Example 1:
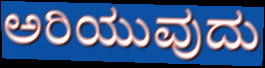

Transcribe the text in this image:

ಅರಿಯುವುದು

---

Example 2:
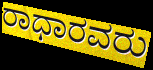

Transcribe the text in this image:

ರಾಧಾರವರು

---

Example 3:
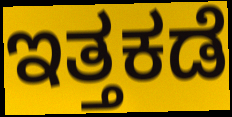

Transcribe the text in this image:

ಇತ್ತಕಡೆ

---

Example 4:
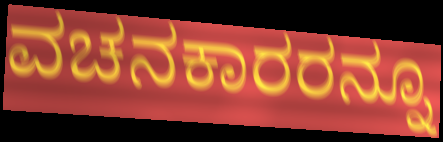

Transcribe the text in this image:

ವಚನಕಾರರನ್ನೂ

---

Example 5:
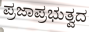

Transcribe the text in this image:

ಪ್ರಜಾಪ್ರಭುತ್ವದ